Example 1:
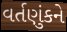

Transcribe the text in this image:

વર્તણુંકને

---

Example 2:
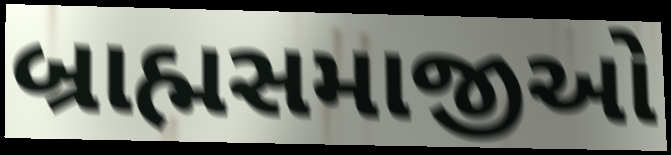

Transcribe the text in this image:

બ્રાહ્મસમાજીઓ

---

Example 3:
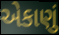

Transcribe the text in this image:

એકાણું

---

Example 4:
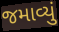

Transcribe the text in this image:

જમાવ્યું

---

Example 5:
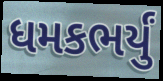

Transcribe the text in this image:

ધમકભર્યું